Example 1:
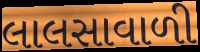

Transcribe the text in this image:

લાલસાવાળી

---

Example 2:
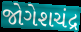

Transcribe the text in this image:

જોગેશચંદ્ર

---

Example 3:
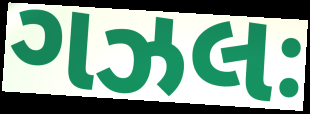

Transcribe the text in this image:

ગઝલઃ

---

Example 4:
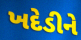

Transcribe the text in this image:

ખદેડીને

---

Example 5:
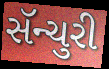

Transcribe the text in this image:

સૅન્ચુરી